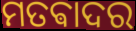
ମତଵାଦର